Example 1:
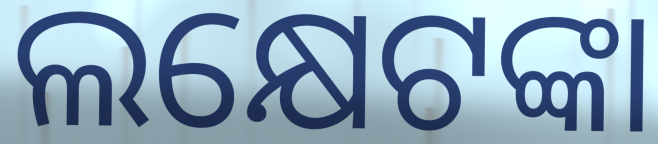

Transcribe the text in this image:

ଲକ୍ଷେଟଙ୍କା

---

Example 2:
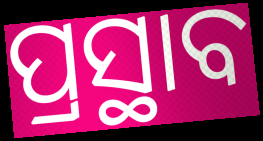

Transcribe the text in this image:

ପ୍ରସ୍ଥାବ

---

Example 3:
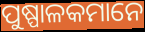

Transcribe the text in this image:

ପୁଷ୍ପାଳକମାନେ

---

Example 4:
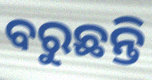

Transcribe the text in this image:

ବରୁଛନ୍ତି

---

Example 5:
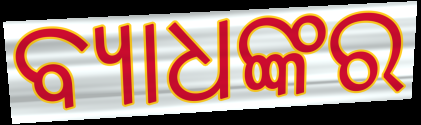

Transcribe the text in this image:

ବ୍ୟାଧଙ୍କର